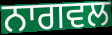
ਨਾਗਵਲ